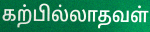
கற்பில்லாதவள்